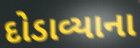
દોડાવ્યાના